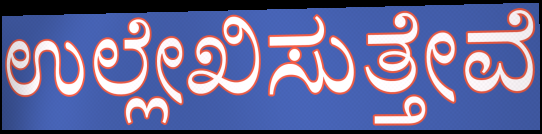
ಉಲ್ಲೇಖಿಸುತ್ತೇವೆ